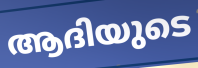
ആദിയുടെ